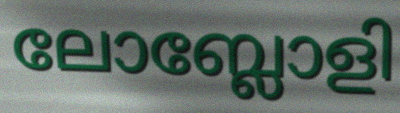
ലോബ്ലോളി